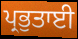
ਪ੍ਰਭੁਤਾਈ